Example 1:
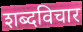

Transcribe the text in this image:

शब्दविचार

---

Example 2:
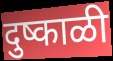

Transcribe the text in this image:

दुष्काळी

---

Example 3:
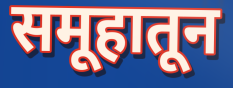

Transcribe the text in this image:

समूहातून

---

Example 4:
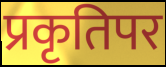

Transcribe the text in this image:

प्रकृतिपर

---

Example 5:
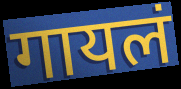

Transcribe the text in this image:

गायलं